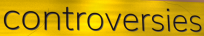
controversies